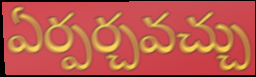
ఏర్పర్చవచ్చు